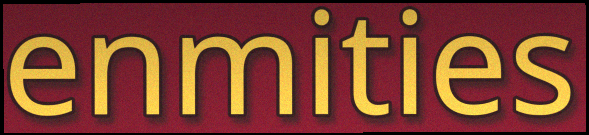
enmities